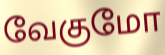
வேகுமோ